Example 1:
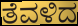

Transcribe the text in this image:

ತೆವಳಿದ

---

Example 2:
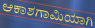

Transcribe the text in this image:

ಆಕಾಶಗಾಮಿಯಾಗಿ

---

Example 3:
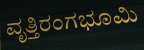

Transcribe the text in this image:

ವೃತ್ತಿರಂಗಭೂಮಿ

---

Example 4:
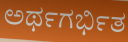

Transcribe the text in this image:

ಅರ್ಥಗರ್ಭಿತ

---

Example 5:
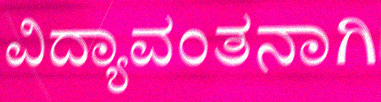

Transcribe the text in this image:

ವಿದ್ಯಾವಂತನಾಗಿ